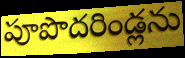
పూపొదరిండ్లను